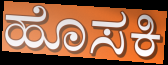
ಹೊಸಕಿ